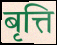
बृत्ति